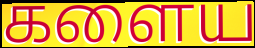
களைய